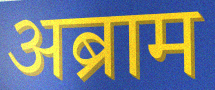
अब्राम